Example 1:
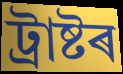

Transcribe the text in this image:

ট্ৰাষ্টৰ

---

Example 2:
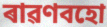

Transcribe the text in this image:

ৰাৱণবহো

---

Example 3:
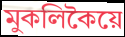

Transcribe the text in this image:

মুকলিকৈয়ে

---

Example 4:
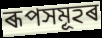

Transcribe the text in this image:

ৰূপসমূহৰ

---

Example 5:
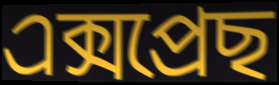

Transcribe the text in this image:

এক্সপ্ৰেছ